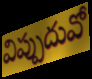
విప్పుదువో